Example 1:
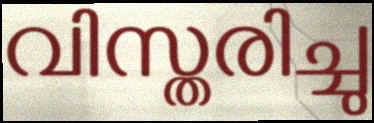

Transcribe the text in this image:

വിസ്തരിച്ചു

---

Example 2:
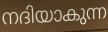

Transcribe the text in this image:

നദിയാകുന്ന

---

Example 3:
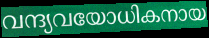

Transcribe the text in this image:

വന്ദ്യവയോധികനായ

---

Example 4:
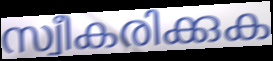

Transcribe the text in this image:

സ്വീകരിക്കുക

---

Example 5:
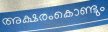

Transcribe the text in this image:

അക്ഷരംകൊണ്ടും